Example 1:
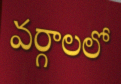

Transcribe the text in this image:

వర్గాలలో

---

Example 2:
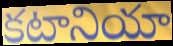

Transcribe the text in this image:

కటానియా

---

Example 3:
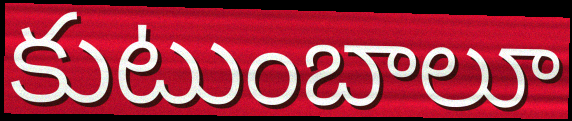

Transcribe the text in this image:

కుటుంబాలూ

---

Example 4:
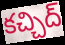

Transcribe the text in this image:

కచ్చిద్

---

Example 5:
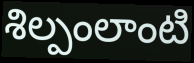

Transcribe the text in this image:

శిల్పంలాంటి